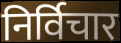
निर्विचार